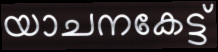
യാചനകേട്ട്